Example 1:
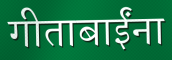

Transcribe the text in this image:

गीताबाईंना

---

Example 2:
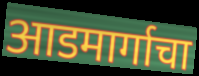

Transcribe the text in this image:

आडमार्गाचा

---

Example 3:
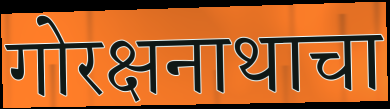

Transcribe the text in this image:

गोरक्षनाथाचा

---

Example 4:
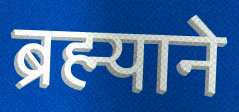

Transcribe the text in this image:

ब्रह्म्याने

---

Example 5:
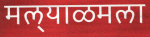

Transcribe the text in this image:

मल्याळमला